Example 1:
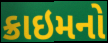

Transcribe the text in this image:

ક્રાઇમનો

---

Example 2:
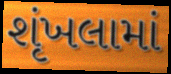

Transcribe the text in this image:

શૃંખલામાં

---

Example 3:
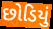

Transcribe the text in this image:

છોડિયું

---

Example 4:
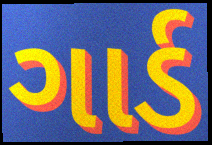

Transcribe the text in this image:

ગાર્ડ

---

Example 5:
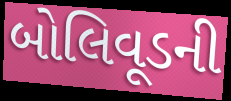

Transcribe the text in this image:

બોલિવૂડની